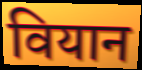
वियान